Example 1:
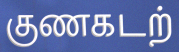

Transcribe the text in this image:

குணகடற்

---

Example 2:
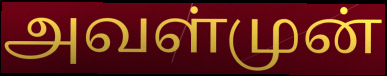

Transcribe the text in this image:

அவள்முன்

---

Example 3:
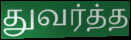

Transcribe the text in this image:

துவர்த்த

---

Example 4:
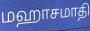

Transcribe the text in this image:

மஹாசமாதி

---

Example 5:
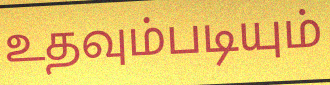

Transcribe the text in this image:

உதவும்படியும்